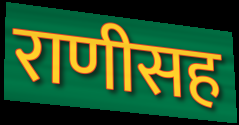
राणीसह